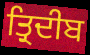
ਤ੍ਰਿਦੀਬ